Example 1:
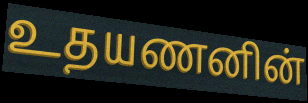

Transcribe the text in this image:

உதயணனின்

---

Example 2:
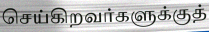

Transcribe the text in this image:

செய்கிறவர்களுக்குத்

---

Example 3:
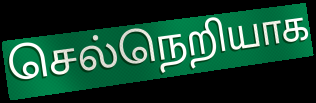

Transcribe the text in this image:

செல்நெறியாக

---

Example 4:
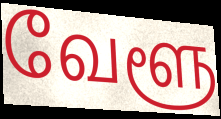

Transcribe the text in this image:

வேளூ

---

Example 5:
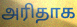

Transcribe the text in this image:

அரிதாக